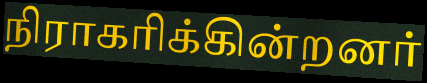
நிராகரிக்கின்றனர்